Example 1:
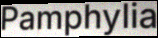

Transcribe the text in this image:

Pamphylia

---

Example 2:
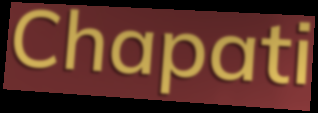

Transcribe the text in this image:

Chapati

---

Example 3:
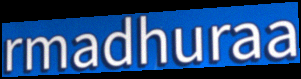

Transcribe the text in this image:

rmadhuraa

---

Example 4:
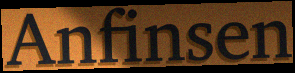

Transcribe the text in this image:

Anfinsen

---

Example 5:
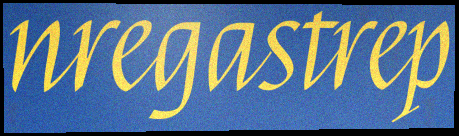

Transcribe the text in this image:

nregastrep